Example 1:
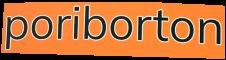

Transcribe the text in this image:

poriborton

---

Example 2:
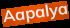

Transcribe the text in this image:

Aapalya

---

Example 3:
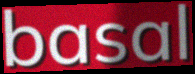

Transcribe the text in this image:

basal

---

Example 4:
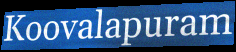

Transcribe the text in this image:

Koovalapuram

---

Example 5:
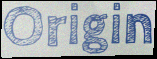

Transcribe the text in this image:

Origin